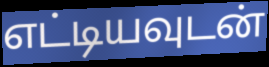
எட்டியவுடன்